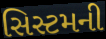
સિસ્ટમની